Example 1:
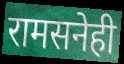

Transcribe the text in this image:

रामसनेही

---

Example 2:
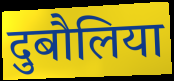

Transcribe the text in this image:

दुबौलिया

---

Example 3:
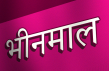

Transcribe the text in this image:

भीनमाल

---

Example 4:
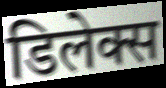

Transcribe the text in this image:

डिलेक्स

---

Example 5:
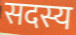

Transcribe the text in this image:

सदस्य